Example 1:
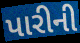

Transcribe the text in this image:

પારીની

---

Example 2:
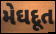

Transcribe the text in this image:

મેઘદૂત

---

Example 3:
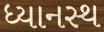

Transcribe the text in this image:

ધ્યાનસ્થ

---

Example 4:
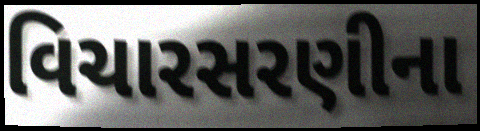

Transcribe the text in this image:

વિચારસરણીના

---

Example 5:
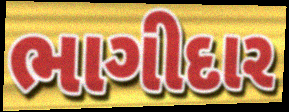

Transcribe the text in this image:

ભાગીદાર